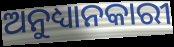
ଅନୁଧ୍ୟାନକାରୀ